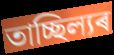
তাচ্ছিল্যৰ